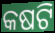
କଷଟି